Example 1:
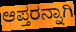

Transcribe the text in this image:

ಆಪ್ತರನ್ನಾಗಿ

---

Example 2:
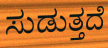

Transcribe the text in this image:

ಸುಡುತ್ತದೆ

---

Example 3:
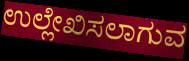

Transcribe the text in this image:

ಉಲ್ಲೇಖಿಸಲಾಗುವ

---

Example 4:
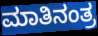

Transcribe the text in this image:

ಮಾತಿನಂತ್ರ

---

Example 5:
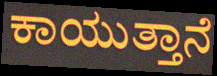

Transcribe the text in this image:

ಕಾಯುತ್ತಾನೆ